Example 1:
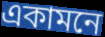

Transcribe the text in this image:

একামনে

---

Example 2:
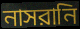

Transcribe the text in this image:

নাসরানি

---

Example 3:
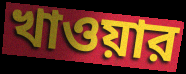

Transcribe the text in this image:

খাওয়ার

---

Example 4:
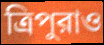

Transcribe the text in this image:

ত্রিপুরাও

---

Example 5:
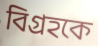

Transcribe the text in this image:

বিগ্রহকে